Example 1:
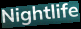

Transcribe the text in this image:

Nightlife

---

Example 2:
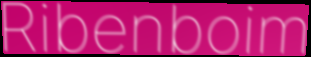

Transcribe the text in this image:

Ribenboim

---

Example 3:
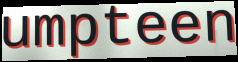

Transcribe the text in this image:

umpteen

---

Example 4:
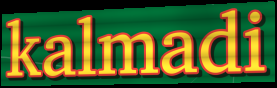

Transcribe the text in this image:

kalmadi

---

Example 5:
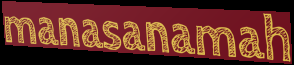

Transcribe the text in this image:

manasanamah